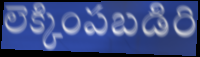
లెక్కింపబడిరి